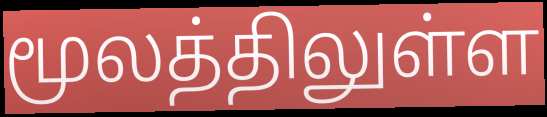
மூலத்திலுள்ள